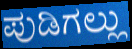
ಪುಡಿಗಲ್ಲು